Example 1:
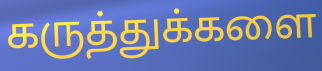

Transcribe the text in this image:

கருத்துக்களை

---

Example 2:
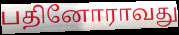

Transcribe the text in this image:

பதினோராவது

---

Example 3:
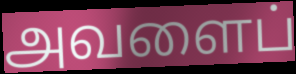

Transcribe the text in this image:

அவளைப்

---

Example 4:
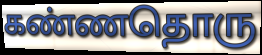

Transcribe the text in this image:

கண்ணதொரு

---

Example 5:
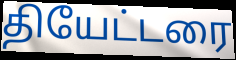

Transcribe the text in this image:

தியேட்டரை